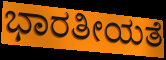
ಭಾರತೀಯತೆ